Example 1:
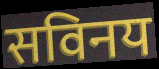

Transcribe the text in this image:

सविनय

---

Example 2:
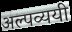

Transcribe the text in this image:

अल्पव्ययी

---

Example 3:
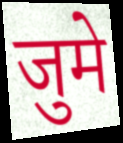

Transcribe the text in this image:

जुमे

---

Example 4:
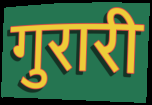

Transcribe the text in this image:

गुरारी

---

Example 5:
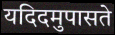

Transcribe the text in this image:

यदिदमुपासते